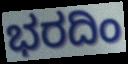
ಭರದಿಂ